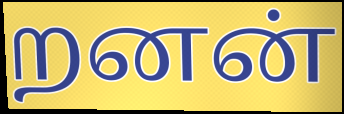
றனன்